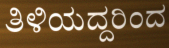
ತಿಳಿಯದ್ದರಿಂದ